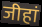
जीहां